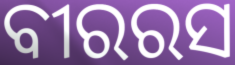
ବୀରରସ